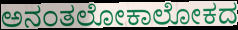
ಅನಂತಲೋಕಾಲೋಕದ